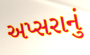
અપ્સરાનું